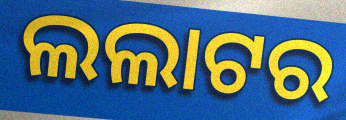
ଲଲାଟର